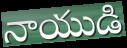
నాయుడి